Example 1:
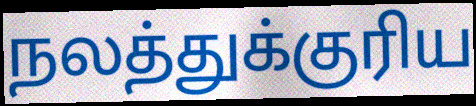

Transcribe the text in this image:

நலத்துக்குரிய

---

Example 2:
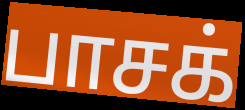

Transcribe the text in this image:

பாசக்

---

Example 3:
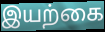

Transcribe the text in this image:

இயற்கை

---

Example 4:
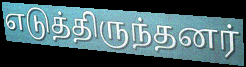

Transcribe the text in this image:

எடுத்திருந்தனர்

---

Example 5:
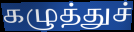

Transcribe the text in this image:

கழுத்துச்